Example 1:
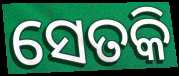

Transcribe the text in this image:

ସେତକି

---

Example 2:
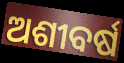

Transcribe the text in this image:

ଅଶୀବର୍ଷ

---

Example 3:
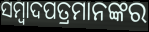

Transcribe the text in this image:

ସମ୍ୱାଦପତ୍ରମାନଙ୍କର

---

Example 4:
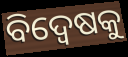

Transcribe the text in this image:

ବିଦ୍ବେଷକୁ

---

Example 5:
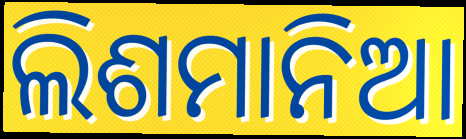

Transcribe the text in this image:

ଲିଶମାନିଆ